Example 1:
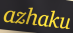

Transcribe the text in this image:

azhaku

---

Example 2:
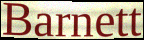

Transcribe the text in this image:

Barnett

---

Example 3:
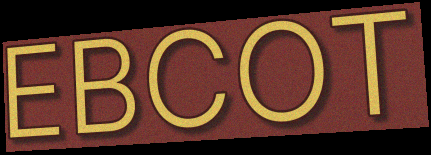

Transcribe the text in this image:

EBCOT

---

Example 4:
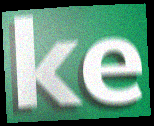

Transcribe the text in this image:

ke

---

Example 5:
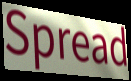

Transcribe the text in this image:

Spread